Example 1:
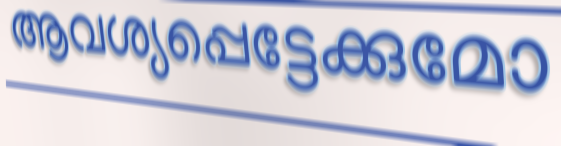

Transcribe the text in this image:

ആവശ്യപ്പെട്ടേക്കുമോ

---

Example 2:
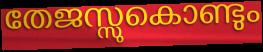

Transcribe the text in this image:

തേജസ്സുകൊണ്ടും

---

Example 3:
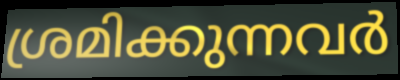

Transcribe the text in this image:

ശ്രമിക്കുന്നവർ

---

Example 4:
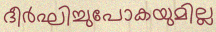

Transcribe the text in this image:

ദീർഘിച്ചുപോകയുമില്ല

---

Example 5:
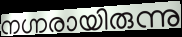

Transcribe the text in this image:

നഗ്നരായിരുന്നു